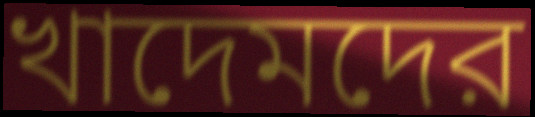
খাদেমদের